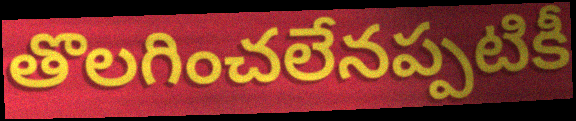
తొలగించలేనప్పటికీ